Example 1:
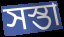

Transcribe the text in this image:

সস্তা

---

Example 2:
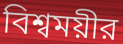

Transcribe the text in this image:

বিশ্বময়ীর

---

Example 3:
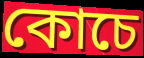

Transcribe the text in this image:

কোচে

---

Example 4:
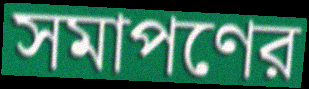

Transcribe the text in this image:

সমাপণের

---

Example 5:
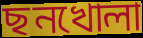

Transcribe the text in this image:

ছনখোলা